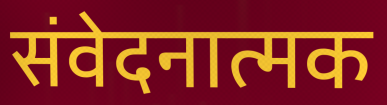
संवेदनात्मक